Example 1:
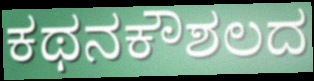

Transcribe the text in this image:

ಕಥನಕೌಶಲದ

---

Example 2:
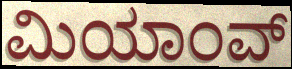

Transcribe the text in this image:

ಮಿಯಾಂವ್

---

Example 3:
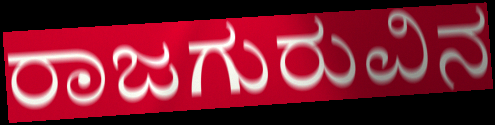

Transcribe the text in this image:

ರಾಜಗುರುವಿನ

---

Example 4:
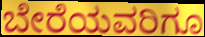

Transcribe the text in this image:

ಬೇರೆಯವರಿಗೂ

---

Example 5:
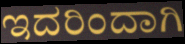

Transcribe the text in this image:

ಇದರಿಂದಾಗಿ